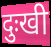
दुःखी